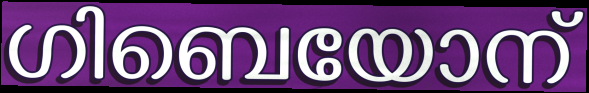
ഗിബെയോന്